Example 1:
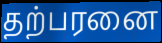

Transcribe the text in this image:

தற்பரனை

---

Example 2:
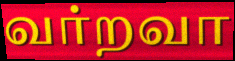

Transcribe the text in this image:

வர்றவா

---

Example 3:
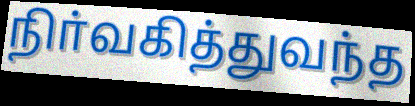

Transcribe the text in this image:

நிர்வகித்துவந்த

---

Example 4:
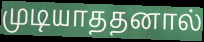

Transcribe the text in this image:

முடியாததனால்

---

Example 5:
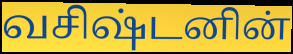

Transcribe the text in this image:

வசிஷ்டனின்